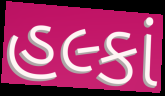
હલ્કાં